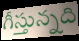
గీస్తున్నది